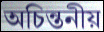
অচিন্তনীয়